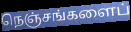
நெஞ்சங்களைப்